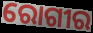
ରୋଗୀର